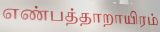
எண்பத்தாறாயிரம்